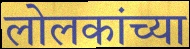
लोलकांच्या